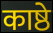
काष्ठे